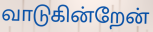
வாடுகின்றேன்